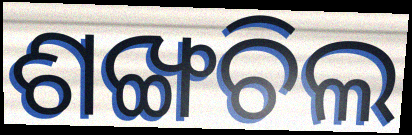
ଶଙ୍ଖଚିଲ